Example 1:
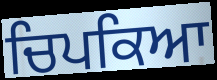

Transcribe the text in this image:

ਚਿਪਕਿਆ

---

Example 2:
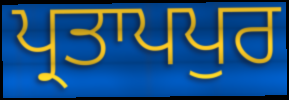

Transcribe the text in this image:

ਪ੍ਰਤਾਪਪੁਰ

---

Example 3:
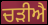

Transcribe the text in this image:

ਚੜੀਐ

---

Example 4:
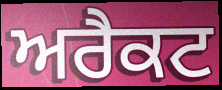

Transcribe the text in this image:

ਅਰੈਕਟ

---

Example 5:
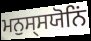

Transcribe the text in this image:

ਮਨੁਸ੍ਸਯੋਨਿਂ